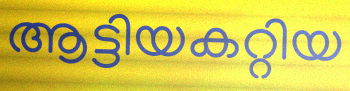
ആട്ടിയകറ്റിയ